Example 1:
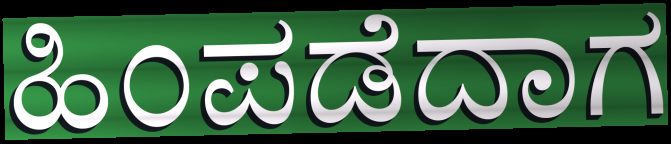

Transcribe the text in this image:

ಹಿಂಪಡೆದಾಗ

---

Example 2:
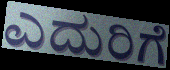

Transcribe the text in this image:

ಎದುರಿಗೆ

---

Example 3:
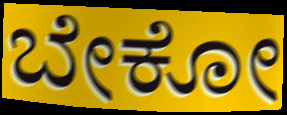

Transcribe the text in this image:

ಬೇಕೋ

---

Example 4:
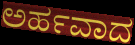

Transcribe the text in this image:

ಅರ್ಹವಾದ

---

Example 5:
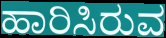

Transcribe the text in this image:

ಹಾರಿಸಿರುವ